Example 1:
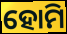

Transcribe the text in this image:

ହୋମି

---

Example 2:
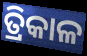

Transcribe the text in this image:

ତ୍ରିକାଳ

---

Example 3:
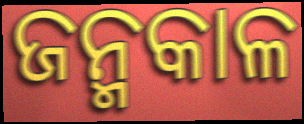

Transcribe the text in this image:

ଜନ୍ମକାଳ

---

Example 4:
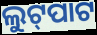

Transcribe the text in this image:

ଲୁଟ୍‍ପାଟ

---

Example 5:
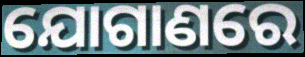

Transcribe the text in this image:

ଯୋଗାଣରେ